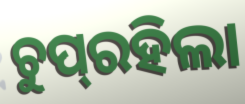
ଚୁପ୍‌ରହିଲା